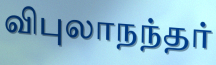
விபுலாநந்தர்